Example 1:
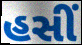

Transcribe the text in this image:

હસીં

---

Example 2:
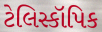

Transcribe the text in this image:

ટેલિસ્કૉપિક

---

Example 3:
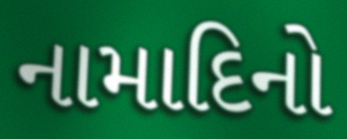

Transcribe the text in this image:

નામાદિનો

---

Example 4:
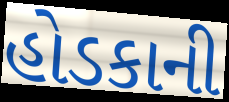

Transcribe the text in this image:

હોડકાની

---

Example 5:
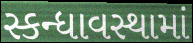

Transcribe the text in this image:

સ્કન્ધાવસ્થામાં